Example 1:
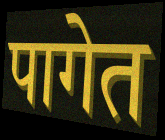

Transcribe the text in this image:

पागेत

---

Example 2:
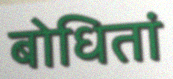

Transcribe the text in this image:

बोधितां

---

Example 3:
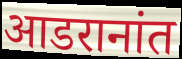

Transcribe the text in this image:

आडरानांत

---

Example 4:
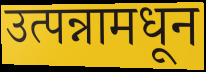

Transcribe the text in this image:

उत्पन्नामधून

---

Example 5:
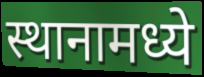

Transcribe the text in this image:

स्थानामध्ये